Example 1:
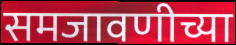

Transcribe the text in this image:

समजावणीच्या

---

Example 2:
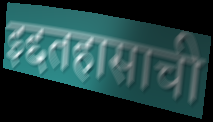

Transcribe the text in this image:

इद्दतहासाची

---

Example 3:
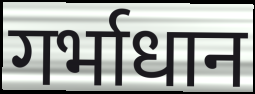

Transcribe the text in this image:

गर्भाधान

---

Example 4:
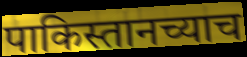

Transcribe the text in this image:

पाकिस्तानच्याच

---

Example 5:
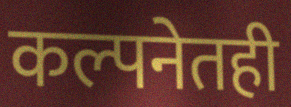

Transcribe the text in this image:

कल्पनेतही